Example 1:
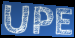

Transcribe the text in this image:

UPE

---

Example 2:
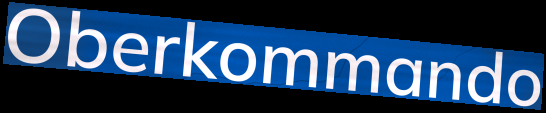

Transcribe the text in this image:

Oberkommando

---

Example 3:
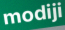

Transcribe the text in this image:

modiji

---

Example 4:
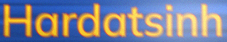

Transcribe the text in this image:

Hardatsinh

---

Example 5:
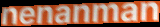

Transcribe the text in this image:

nenanman